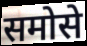
समोसे